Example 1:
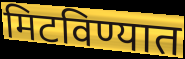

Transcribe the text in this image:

मिटविण्यात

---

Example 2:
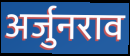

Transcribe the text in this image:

अर्जुनराव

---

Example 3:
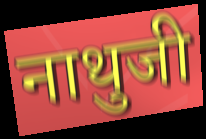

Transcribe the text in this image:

नाथुजी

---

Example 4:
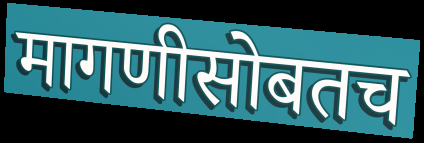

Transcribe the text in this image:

मागणीसोबतच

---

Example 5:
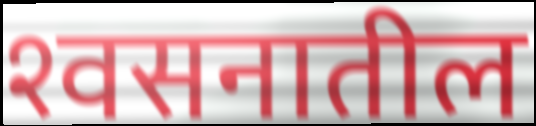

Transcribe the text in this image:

श्वसनातील